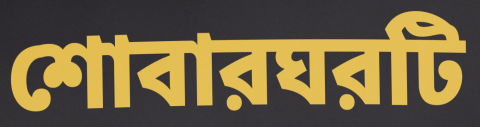
শোবারঘরটি